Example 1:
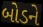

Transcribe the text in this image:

બોડને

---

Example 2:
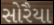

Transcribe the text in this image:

સોરૈયા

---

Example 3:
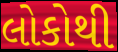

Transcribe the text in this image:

લોકોથી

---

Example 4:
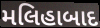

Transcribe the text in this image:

મલિહાબાદ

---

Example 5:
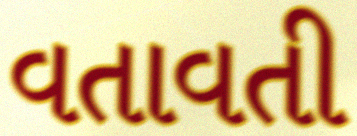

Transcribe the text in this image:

વતાવતી